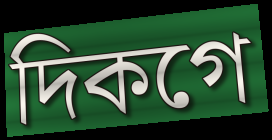
দিকগে